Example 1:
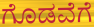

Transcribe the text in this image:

ಗೊಡವೆಗೆ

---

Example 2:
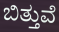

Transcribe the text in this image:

ಬಿತ್ತುವೆ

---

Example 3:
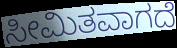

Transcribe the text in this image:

ಸೀಮಿತವಾಗದೆ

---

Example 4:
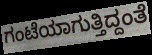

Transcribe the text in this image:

ಗಂಟೆಯಾಗುತ್ತಿದ್ದಂತೆ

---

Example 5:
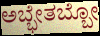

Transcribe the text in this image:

ಅಬ್ಭೇತಬ್ಬೋ